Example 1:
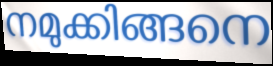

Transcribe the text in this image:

നമുക്കിങ്ങനെ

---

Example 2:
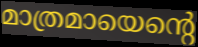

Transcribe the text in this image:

മാത്രമായെന്റെ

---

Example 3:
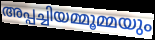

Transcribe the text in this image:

അപ്പച്ചിയമ്മൂമ്മയും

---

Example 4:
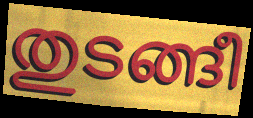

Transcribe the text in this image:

തുടങ്ങീ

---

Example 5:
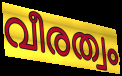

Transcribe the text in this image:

വീരത്വം